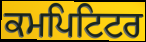
ਕਮਪਿਟਿਟਰ